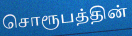
சொரூபத்தின்